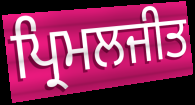
ਪ੍ਰਿਮਲਜੀਤ